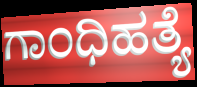
ಗಾಂಧಿಹತ್ಯೆ